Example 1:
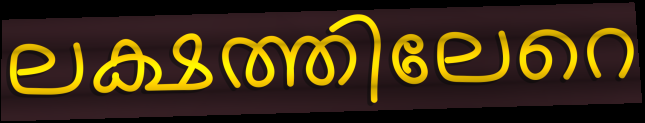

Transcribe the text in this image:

ലക്ഷത്തിലേറെ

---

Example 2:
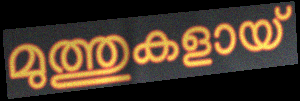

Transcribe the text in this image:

മുത്തുകളായ്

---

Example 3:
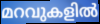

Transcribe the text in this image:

മറവുകളിൽ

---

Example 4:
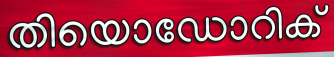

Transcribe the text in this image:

തിയൊഡോറിക്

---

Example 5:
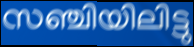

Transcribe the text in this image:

സഞ്ചിയിലിട്ടു